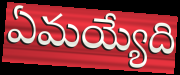
ఏమయ్యేది